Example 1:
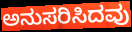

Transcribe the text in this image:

ಅನುಸರಿಸಿದವು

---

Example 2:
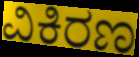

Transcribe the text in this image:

ವಿಕಿರಣ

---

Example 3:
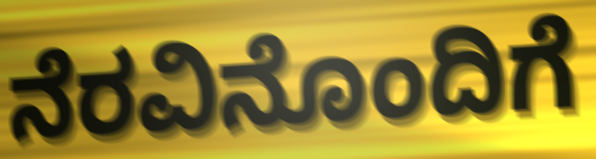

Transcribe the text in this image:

ನೆರವಿನೊಂದಿಗೆ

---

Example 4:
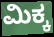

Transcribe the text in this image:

ಮಿಕ್ಕ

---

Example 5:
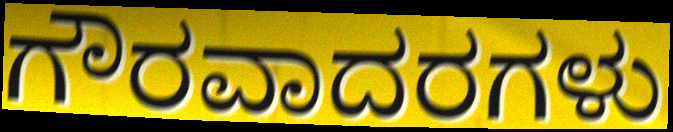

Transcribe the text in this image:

ಗೌರವಾದರಗಳು